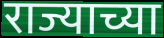
राज्याच्या